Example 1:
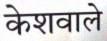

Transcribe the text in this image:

केशवाले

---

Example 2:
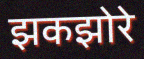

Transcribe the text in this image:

झकझोरे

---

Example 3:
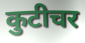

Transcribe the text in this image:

कुटीचर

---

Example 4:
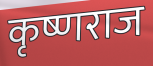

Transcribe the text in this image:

कृष्णराज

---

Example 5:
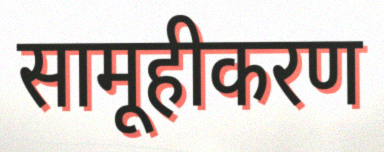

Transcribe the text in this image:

सामूहीकरण